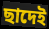
ছাদেই